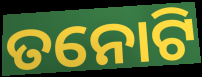
ତନୋଟି